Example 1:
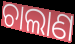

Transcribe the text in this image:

ଚାଲାଣ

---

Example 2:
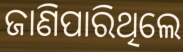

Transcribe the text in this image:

ଜାଣିପାରିଥିଲେ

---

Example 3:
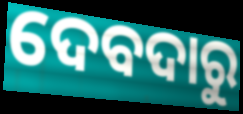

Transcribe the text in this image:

ଦେବଦାରୁ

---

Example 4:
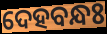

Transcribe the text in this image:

ଦେହବନ୍ଧଃ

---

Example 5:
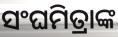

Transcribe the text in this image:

ସଂଘମିତ୍ରାଙ୍କ